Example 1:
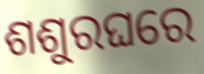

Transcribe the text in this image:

ଶଶୁରଘରେ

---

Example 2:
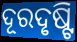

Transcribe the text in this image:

ଦୂରଦୃଷ୍ଟି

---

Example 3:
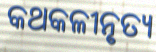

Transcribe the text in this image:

କଥକଳୀନୃତ୍ୟ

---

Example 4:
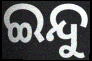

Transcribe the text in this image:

ଇନ୍ଦୁ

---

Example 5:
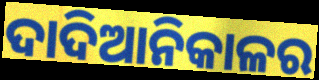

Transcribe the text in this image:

ଦାଦିଆନିକାଳର